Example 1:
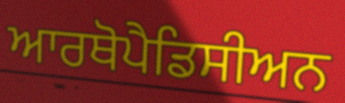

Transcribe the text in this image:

ਆਰਥੋਪੈਡਿਸੀਅਨ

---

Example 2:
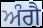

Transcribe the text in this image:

ਅੰਗੈ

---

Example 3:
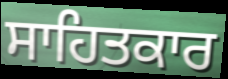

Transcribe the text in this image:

ਸਾਹਿਤਕਾਰ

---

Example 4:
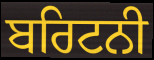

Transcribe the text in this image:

ਬਰਿਟਨੀ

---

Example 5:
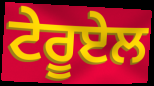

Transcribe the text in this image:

ਟੇਰੂਏਲ